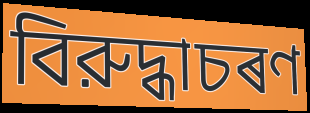
বিৰুদ্ধাচৰণ